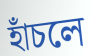
হাঁচলে